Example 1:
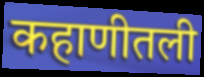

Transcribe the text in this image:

कहाणीतली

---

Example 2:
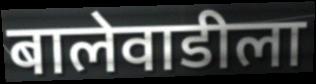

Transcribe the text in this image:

बालेवाडीला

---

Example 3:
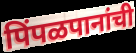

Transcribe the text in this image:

पिंपळपानांची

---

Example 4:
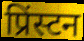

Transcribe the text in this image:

प्रिंस्टन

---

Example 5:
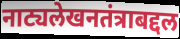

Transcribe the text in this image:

नाट्यलेखनतंत्राबद्दल